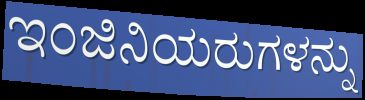
ಇಂಜಿನಿಯರುಗಳನ್ನು